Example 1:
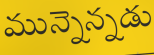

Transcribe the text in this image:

మున్నెన్నడు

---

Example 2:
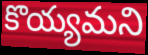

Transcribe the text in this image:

కొయ్యమని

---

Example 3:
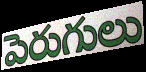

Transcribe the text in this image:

పెరుగులు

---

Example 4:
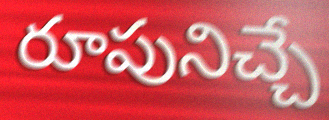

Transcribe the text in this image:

రూపునిచ్చే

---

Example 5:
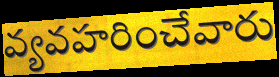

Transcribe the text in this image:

వ్యవహరించేవారు